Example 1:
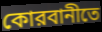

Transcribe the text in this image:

কোরবানীতে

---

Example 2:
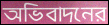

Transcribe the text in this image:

অভিবাদনের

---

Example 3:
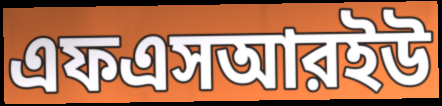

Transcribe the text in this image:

এফএসআরইউ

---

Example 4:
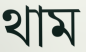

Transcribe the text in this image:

থাম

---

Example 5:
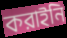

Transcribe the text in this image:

করাইনি